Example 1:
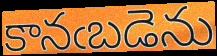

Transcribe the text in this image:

కానఁబడెను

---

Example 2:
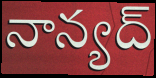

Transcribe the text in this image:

నాన్యద్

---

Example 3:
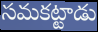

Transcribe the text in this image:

సమకట్టాడు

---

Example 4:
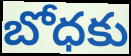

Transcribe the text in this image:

బోధకు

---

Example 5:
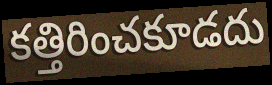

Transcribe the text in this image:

కత్తిరించకూడదు